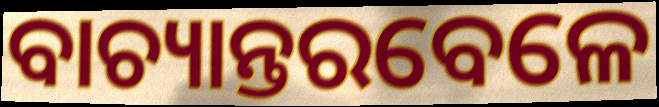
ବାଚ୍ୟାନ୍ତରବେଳେ